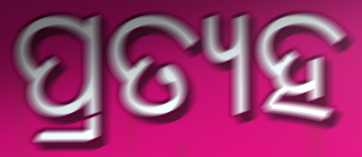
ପ୍ରତ୍ଯହ